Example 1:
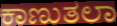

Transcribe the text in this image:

ಕಾಣುತಲಾ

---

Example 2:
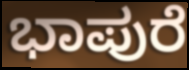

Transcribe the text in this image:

ಭಾಪುರೆ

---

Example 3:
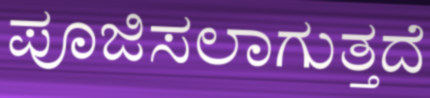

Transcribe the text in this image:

ಪೂಜಿಸಲಾಗುತ್ತದೆ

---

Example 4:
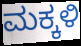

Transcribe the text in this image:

ಮಕ್ಕಳಿ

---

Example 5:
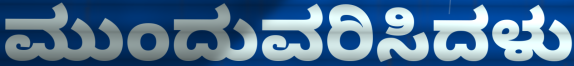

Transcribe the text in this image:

ಮುಂದುವರಿಸಿದಳು